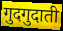
गुदगुदाती